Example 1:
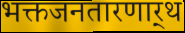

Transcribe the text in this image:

भक्तजनतारणार्थ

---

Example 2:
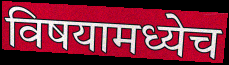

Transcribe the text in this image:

विषयामध्येच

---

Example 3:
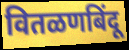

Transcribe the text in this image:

वितळणबिंदू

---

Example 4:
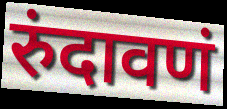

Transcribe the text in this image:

रुंदावणं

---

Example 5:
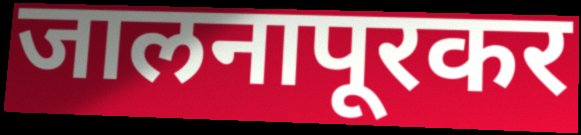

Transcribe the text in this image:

जालनापूरकर